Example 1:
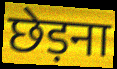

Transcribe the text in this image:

छेड़ना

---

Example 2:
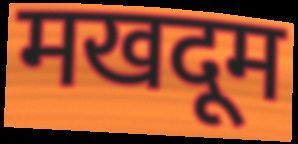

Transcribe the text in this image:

मखदूम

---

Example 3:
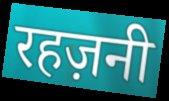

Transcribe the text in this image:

रहज़नी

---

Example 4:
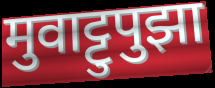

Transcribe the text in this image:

मुवाट्टुपुझा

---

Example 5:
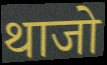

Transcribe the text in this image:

थाजो